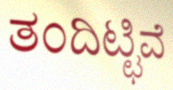
ತಂದಿಟ್ಟಿವೆ